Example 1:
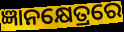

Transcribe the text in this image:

ଜ୍ଞାନକ୍ଷେତ୍ରରେ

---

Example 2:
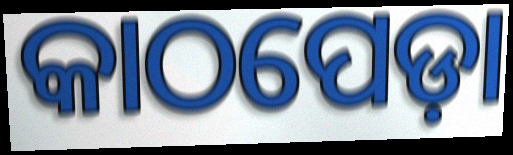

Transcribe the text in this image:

କାଠପେଡ଼ା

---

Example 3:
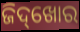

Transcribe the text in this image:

ଜିଦ୍‌ଖୋର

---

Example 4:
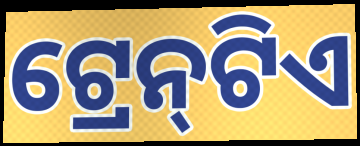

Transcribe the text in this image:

ଟ୍ରେନ୍‌ଟିଏ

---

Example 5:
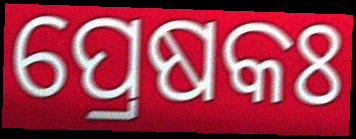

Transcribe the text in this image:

ପ୍ରେଷକଃ